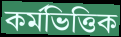
কর্মভিত্তিক